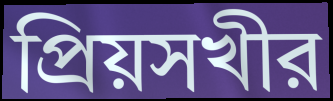
প্রিয়সখীর